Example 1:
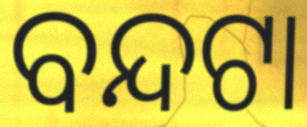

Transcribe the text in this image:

ବନ୍ଦଟା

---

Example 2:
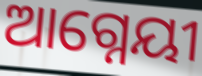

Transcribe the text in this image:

ଆଗ୍ନେୟୀ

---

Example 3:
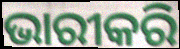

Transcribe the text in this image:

ଭାରୀକରି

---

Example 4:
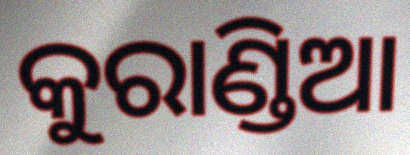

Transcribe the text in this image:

କୁରାଣ୍ଡିଆ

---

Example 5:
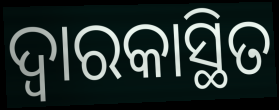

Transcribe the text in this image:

ଦ୍ୱାରକାସ୍ଥିତ